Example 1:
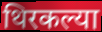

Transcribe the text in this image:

थिरकल्या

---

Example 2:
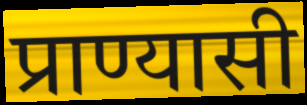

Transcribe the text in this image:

प्राण्यासी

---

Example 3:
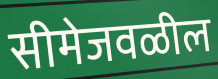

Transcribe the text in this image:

सीमेजवळील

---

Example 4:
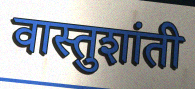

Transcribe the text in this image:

वास्तुशांती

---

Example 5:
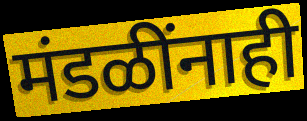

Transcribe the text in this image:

मंडळींनाही